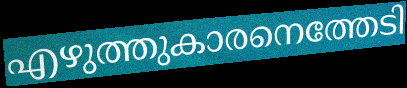
എഴുത്തുകാരനെത്തേടി